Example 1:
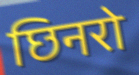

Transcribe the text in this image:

छिनरो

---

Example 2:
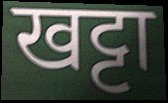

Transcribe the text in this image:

खट्टा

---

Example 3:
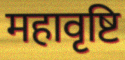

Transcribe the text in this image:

महावृष्टि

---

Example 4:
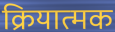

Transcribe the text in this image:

क्रियात्‍मक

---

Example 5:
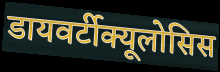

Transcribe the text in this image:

डायवर्टीक्यूलोसिस